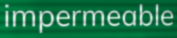
impermeable